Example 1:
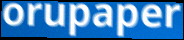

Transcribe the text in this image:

orupaper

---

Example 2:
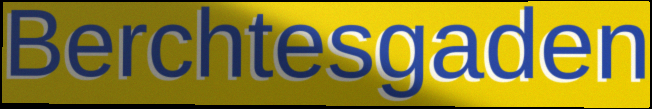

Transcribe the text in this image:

Berchtesgaden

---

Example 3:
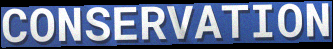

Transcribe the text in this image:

CONSERVATION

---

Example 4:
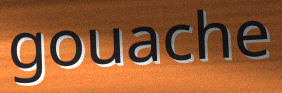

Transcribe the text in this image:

gouache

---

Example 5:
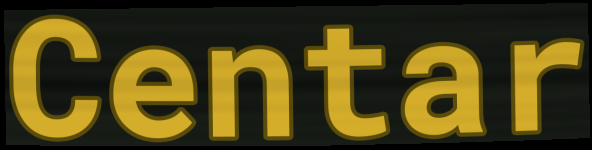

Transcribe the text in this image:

Centar